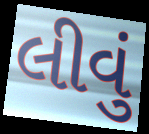
લીવું